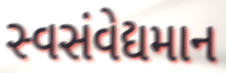
સ્વસંવેદ્યમાન